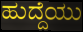
ಹುದ್ದೆಯು